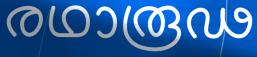
രഥാരൂഢ